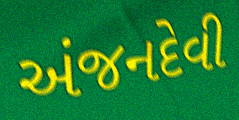
અંજનદેવી